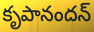
కృపానందన్